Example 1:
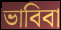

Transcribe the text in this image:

ভাবিবা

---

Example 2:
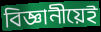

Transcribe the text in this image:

বিজ্ঞানীয়েই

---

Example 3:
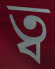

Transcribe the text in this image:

ত্ব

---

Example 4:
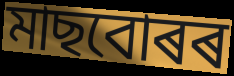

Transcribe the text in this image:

মাছবোৰৰ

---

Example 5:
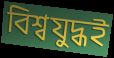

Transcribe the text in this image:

বিশ্বযুদ্ধই